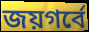
জয়গর্বে